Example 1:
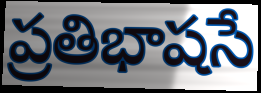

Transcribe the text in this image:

ప్రతిభాషసే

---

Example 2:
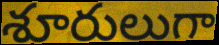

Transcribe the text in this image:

శూరులుగా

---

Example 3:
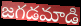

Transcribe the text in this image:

జగడమాడి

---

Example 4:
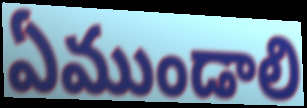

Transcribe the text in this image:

ఏముండాలి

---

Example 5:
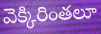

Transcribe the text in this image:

వెక్కిరింతలూ